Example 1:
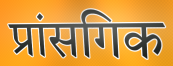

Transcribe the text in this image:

प्रांसगिक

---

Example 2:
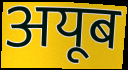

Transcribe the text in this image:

अयूब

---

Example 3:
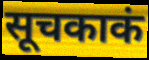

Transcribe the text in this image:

सूचकाकं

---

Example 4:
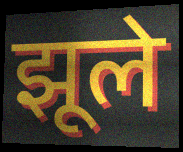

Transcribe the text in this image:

झूले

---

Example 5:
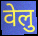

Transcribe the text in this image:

वेलु